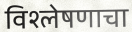
विश्लेषणाचा